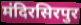
मंदिरसिरपुर